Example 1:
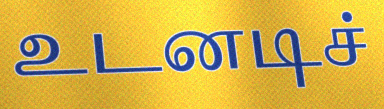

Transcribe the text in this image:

உடனடிச்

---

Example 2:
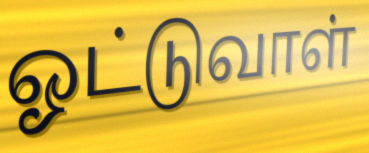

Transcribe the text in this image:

ஓட்டுவாள்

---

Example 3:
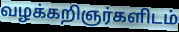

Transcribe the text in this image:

வழக்கறிஞர்களிடம்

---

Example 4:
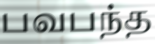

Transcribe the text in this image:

பவபந்த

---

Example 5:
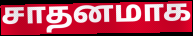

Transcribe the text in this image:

சாதனமாக